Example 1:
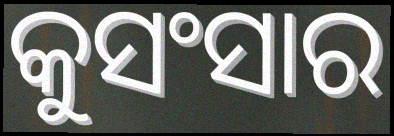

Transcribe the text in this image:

କୁସଂସାର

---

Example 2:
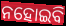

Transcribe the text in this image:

ନହୋଇବି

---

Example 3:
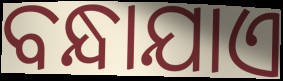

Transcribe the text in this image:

ବନ୍ଧାଯାଏ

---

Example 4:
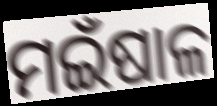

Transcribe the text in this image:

ମଇଁଷାଳ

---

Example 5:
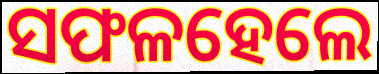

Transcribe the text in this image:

ସଫଳହେଲେ